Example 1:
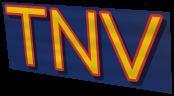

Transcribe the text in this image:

TNV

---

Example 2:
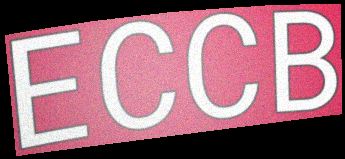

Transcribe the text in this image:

ECCB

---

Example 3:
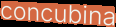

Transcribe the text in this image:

concubina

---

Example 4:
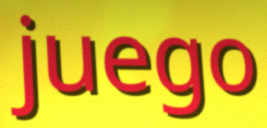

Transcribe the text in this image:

juego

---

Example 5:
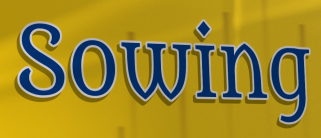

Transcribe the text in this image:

Sowing